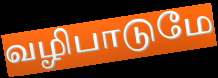
வழிபாடுமே